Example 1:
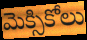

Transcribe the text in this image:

మెక్సికోలు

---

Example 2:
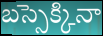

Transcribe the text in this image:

బస్సెక్కినా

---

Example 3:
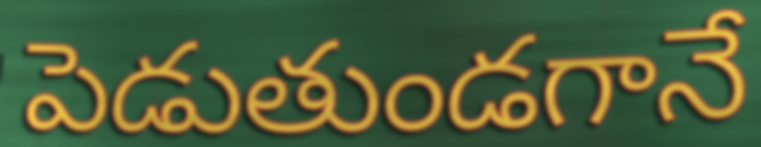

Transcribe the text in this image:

పెడుతుండగానే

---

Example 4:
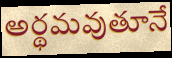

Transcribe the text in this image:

అర్థమవుతూనే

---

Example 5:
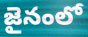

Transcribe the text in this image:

జైనంలో